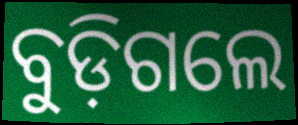
ବୁଡ଼ିଗଲେ